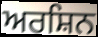
ਅਰਸ਼ਿਨ